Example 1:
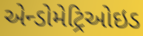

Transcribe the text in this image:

એન્ડોમેટ્રિઓઇડ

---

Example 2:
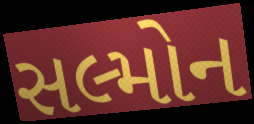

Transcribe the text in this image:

સલ્મોન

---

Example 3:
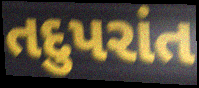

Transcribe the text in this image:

તદુપરાંત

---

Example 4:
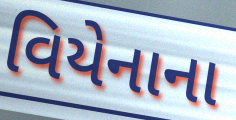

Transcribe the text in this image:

વિયેનાના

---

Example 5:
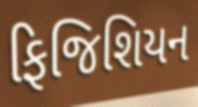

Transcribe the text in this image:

ફિજિશિયન